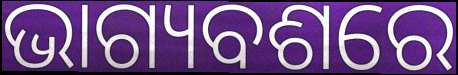
ଭାଗ୍ୟବଶରେ